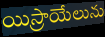
యిస్రాయేలును